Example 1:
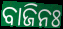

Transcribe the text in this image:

ବାଜିନଃ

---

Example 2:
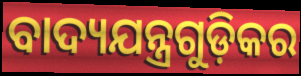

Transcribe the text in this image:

ବାଦ୍ୟଯନ୍ତ୍ରଗୁଡ଼ିକର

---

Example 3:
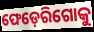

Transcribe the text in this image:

ଫେଡ଼େରିଗୋକୁ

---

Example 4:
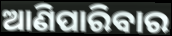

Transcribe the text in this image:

ଆଣିପାରିବାର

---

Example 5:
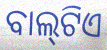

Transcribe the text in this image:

ବାଲ୍‍ଟିଏ